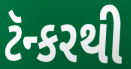
ટૅન્કરથી